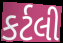
કર્ટલી